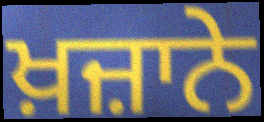
ਖ਼ਜ਼ਾਨੇ